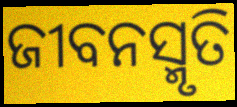
ଜୀବନସ୍ମୃତି